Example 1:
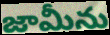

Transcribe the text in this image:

జామీను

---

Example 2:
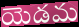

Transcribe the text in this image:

యెడమ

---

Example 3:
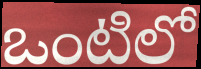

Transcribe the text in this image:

ఒంటిలో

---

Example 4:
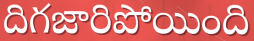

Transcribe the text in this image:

దిగజారిపోయింది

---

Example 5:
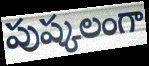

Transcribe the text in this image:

పుష్కలంగా